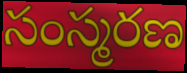
సంస్మరణ